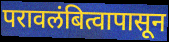
परावलंबित्वापासून